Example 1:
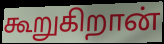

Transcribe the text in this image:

கூறுகிறான்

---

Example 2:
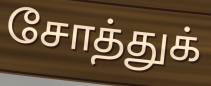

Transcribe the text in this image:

சோத்துக்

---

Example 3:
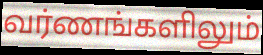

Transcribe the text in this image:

வர்ணங்களிலும்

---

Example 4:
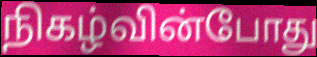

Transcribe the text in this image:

நிகழ்வின்போது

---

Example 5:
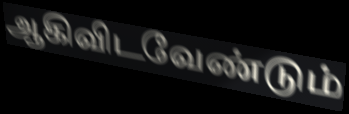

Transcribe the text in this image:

ஆகிவிடவேண்டும்